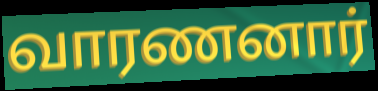
வாரணனார்